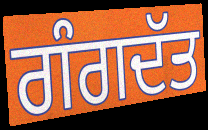
ਗੰਗਦੱਤ